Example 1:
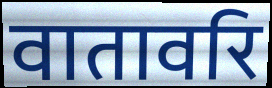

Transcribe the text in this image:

वातावरि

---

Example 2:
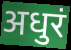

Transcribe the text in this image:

अधुरं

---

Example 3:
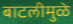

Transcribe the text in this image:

बाटलीमुळे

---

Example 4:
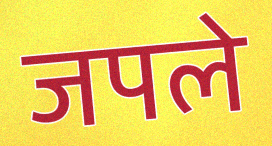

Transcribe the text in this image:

जपले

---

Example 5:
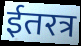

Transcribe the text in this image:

ईतरत्र